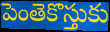
పెంతెకొస్తుకు